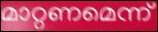
മാറ്റണമെന്ന്